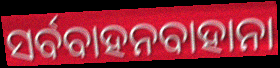
ସର୍ବବାହନବାହାନା